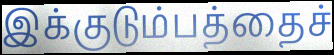
இக்குடும்பத்தைச்